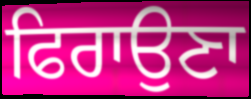
ਫਿਰਾਉਣਾ